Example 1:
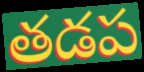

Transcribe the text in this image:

తడప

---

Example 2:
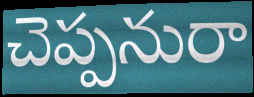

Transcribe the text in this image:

చెప్పనురా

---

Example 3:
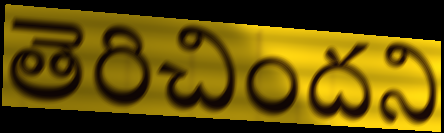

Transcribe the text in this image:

తెరిచిందని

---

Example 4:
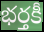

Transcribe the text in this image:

భర్తకీ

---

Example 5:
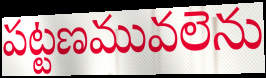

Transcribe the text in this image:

పట్టణమువలెను